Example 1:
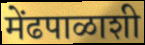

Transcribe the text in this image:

मेंढपाळाशी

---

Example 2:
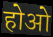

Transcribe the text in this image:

होओ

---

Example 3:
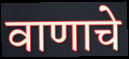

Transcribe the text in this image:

वाणाचे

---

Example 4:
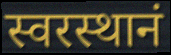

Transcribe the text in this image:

स्वरस्थानं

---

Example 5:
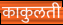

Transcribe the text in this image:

काकुलती